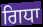
ਗਿਧਾ